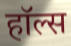
हॉल्स